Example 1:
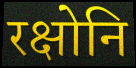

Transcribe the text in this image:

रक्षोनि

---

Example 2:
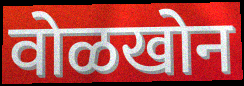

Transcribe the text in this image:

वोळखोन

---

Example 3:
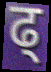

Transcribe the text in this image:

ढ्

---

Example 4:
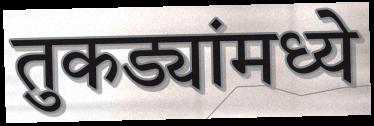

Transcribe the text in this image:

तुकड्यांमध्ये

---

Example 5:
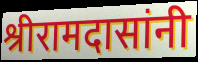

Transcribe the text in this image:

श्रीरामदासांनी